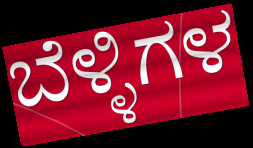
ಬೆಳ್ಳಿಗಳ